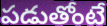
పడుతోంటే